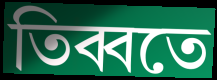
তিব্বতে